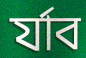
র্যাব